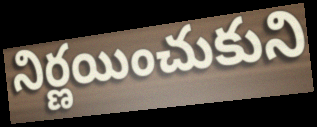
నిర్ణయించుకుని